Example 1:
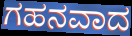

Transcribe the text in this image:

ಗಹನವಾದ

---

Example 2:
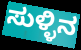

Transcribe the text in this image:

ಸುಳ್ಳಿನ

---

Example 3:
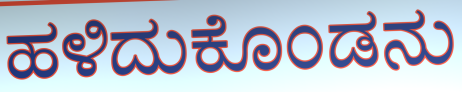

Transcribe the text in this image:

ಹಳಿದುಕೊಂಡನು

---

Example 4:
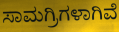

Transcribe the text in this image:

ಸಾಮಗ್ರಿಗಳಾಗಿವೆ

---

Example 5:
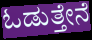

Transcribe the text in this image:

ಓಡುತ್ತೇನೆ